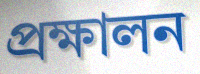
প্রক্ষালন